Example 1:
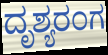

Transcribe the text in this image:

ದೃಶ್ಯರಂಗ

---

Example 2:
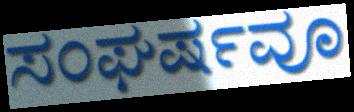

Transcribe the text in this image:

ಸಂಘರ್ಷವೂ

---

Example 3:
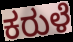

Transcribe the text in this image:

ಕರುಳೆ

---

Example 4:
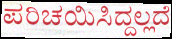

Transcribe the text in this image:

ಪರಿಚಯಿಸಿದ್ದಲ್ಲದೆ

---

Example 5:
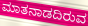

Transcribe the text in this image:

ಮಾತನಾಡದಿರುವ